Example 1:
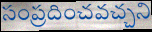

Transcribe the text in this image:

సంప్రదించవచ్చని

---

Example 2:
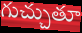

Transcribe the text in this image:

గుచ్చుతూ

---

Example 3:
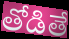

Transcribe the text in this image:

తోడితే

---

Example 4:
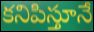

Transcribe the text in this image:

కనిపిస్తూనే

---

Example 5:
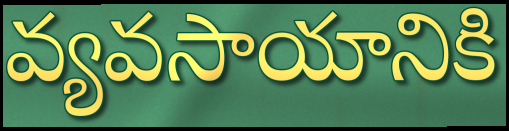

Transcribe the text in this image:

వ్యవసాయానికి